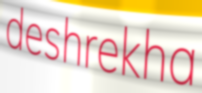
deshrekha